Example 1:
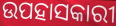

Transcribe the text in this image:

ଉପହାସକାରୀ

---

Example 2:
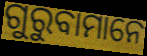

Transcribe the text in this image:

ଗୁରୁବାମାନେ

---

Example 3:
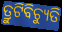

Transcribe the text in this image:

ତ୍ରୁଟିବିଚ୍ୟୁତି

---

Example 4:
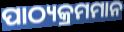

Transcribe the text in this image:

ପାଠ୍ୟକ୍ରମମାନ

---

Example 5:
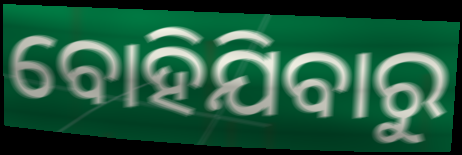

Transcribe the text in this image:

ବୋହିଯିବାରୁ